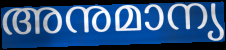
അനുമാന്യ